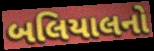
બલિયાલનો